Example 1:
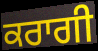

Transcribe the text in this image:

ਕਰਾਗੀ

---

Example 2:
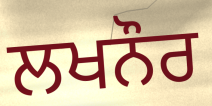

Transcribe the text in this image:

ਲਖਨੌਰ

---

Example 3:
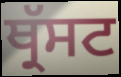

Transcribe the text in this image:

ਥ੍ਰੱਸਟ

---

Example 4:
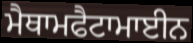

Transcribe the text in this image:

ਮੈਥਾਮਫੈਟਾਮਾਈਨ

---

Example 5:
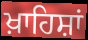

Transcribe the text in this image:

ਖ਼ਾਹਿਸ਼ਾਂ